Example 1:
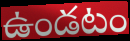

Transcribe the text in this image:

ఉండటం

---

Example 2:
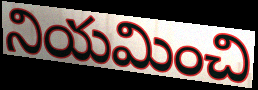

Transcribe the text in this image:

నియమించి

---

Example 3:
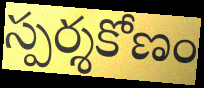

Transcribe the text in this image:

స్పర్శకోణం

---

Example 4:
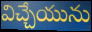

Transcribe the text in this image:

విచ్చేయును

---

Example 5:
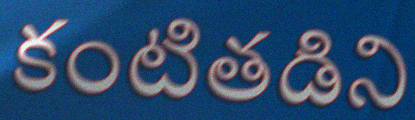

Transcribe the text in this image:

కంటితడిని